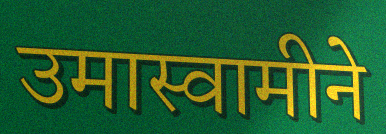
उमास्वामीने